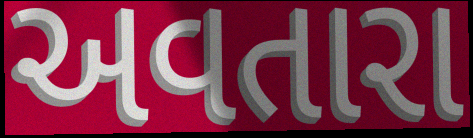
અવતારા